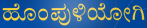
ಹೊಂಪುಳಿಯೋಗಿ